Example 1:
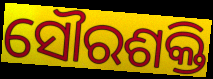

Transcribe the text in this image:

ସୌରଶକ୍ତି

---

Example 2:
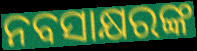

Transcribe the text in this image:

ନବସାକ୍ଷରଙ୍କ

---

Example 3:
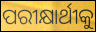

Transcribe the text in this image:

ପରୀକ୍ଷାର୍ଥୀକୁ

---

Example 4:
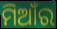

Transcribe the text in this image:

ମିଆଁର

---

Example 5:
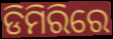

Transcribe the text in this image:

ଡିମିରିରେ